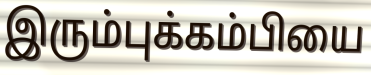
இரும்புக்கம்பியை